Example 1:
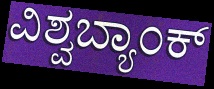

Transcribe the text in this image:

ವಿಶ್ವಬ್ಯಾಂಕ್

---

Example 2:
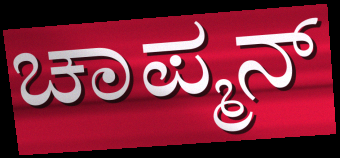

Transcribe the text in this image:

ಚಾಪ್ಮನ್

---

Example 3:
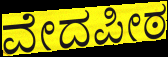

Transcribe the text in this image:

ವೇದಪೀಠ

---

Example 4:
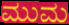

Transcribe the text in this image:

ಮುಮ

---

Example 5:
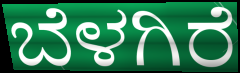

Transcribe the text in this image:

ಬೆಳಗಿರೆ